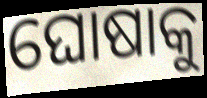
ଘୋଷାକୁ